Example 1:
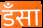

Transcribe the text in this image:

डँसा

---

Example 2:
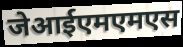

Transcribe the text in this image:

जेआईएमएमएस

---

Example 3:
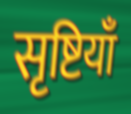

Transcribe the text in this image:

सृष्टियाँ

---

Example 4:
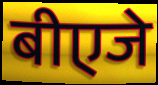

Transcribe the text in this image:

बीएजे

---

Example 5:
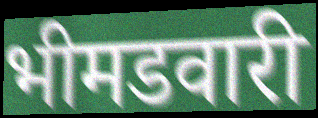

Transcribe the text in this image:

भीमडवारी